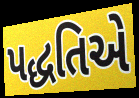
પદ્ધતિએ